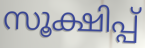
സൂക്ഷിപ്പ്